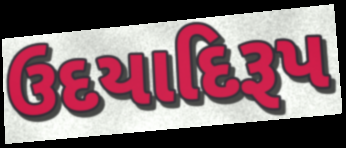
ઉદયાદિરૂપ